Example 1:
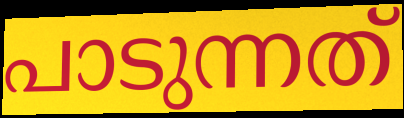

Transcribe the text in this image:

പാടുന്നത്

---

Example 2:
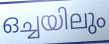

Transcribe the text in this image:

ഒച്ചയിലും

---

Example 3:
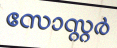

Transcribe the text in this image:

സോസ്റ്റർ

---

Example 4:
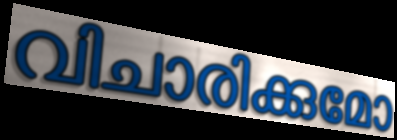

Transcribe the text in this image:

വിചാരിക്കുമോ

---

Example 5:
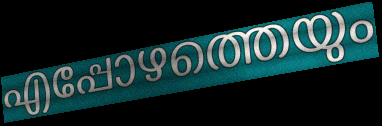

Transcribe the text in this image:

എപ്പോഴത്തെയും